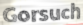
Gorsuch